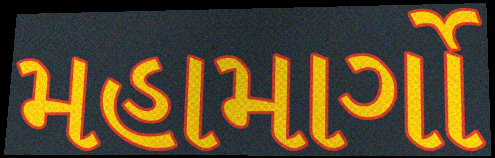
મહામાર્ગો